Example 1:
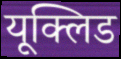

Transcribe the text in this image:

यूक्लिड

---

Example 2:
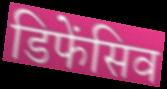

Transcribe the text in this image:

डिफेंसिव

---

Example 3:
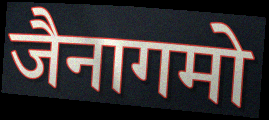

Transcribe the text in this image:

जैनागमो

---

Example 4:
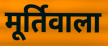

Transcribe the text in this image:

मूर्तिवाला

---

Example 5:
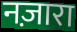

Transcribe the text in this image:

नज़ारा